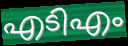
എടിഎം